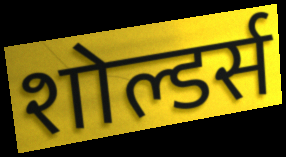
शोल्डर्स